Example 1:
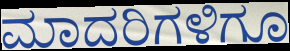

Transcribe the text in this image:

ಮಾದರಿಗಳಿಗೂ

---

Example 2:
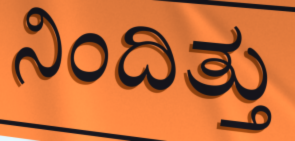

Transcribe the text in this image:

ನಿಂದಿತ್ತು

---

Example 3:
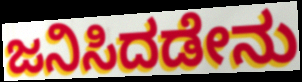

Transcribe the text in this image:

ಜನಿಸಿದಡೇನು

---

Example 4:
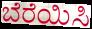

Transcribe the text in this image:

ಬೆರೆಯಿಸಿ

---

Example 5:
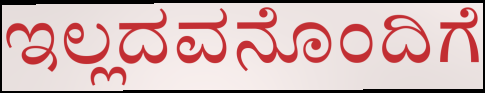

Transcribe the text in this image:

ಇಲ್ಲದವನೊಂದಿಗೆ